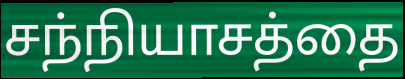
சந்நியாசத்தை